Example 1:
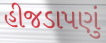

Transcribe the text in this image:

હીજડાપણું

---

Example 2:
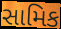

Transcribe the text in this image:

સામિક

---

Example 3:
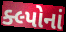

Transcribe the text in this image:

ક્લ્પોનાં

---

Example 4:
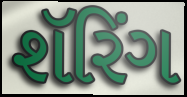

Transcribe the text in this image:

શૅરિંગ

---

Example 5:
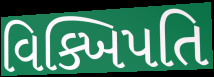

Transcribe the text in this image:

વિક્ખિપતિ